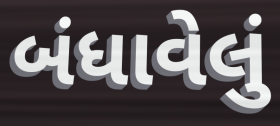
બંધાવેલું